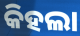
କିହଲା